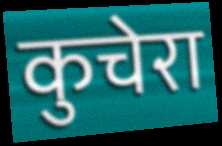
कुचेरा